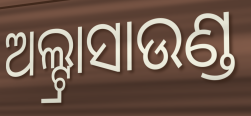
ଅଲ୍ଟ୍ରାସାଉଣ୍ଡ